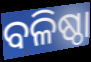
ବଳିଷ୍ଠା